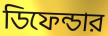
ডিফেন্ডার